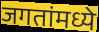
जगतांमध्ये